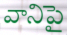
వానిపై